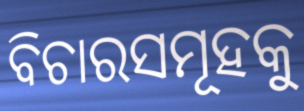
ବିଚାରସମୂହକୁ